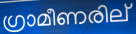
ഗ്രാമീണരില്